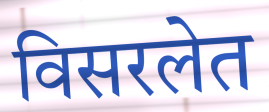
विसरलेत